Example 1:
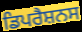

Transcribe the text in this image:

ਡਿਪਰੈਸ਼ਨਸ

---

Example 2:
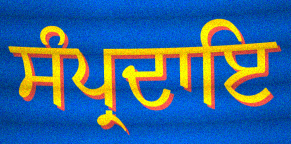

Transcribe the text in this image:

ਸੰਪ੍ਰਦਾਇ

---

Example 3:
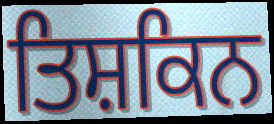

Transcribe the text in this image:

ਤਿਸ਼ਕਿਨ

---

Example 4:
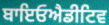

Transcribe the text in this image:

ਬਾਇਓਐਡੀਟਿਵ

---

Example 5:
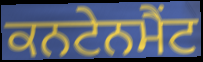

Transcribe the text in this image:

ਕਨਟੇਨਮੈਂਟ